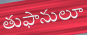
తుఫానులూ